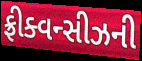
ફ્રીક્વન્સીઝની